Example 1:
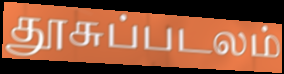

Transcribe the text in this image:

தூசுப்படலம்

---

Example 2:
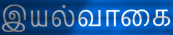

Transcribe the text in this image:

இயல்வாகை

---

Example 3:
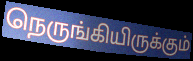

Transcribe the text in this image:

நெருங்கியிருக்கும்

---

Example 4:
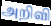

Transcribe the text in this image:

அறிவி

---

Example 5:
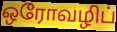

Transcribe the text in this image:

ஒரோவழிப்